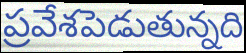
ప్రవేశపెడుతున్నది